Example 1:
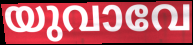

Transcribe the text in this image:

യുവാവേ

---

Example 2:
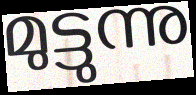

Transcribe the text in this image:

മുട്ടുന്നു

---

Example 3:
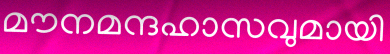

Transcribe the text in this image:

മൗനമന്ദഹാസവുമായി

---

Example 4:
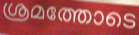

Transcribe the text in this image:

ശ്രമത്തോടെ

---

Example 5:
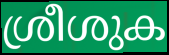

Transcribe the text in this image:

ശ്രീശുക